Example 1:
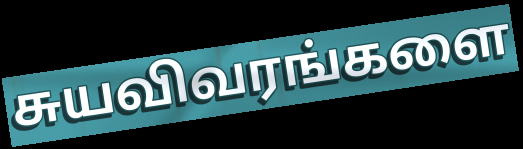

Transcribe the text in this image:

சுயவிவரங்களை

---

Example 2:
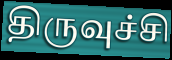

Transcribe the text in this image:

திருவுச்சி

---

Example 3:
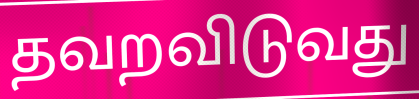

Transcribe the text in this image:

தவறவிடுவது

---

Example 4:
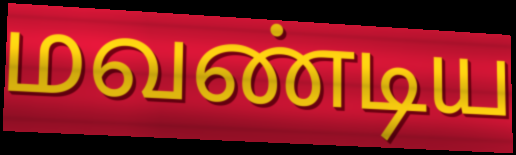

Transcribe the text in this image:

மவண்டிய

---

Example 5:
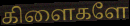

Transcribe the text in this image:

கிளைகளே